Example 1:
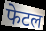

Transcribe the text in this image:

फेटल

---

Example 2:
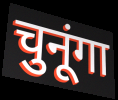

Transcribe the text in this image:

चुनूंगा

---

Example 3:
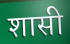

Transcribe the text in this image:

शासी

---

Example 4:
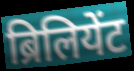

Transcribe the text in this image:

ब्रिलियेंट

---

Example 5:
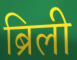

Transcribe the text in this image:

ब्रिली